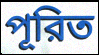
পূরিত